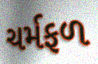
ચર્મફળ